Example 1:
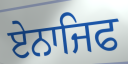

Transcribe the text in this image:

ਏਨਾਜਿਫ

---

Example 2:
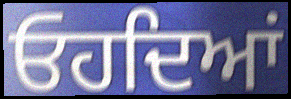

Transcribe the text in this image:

ਓਹਦਿਆਂ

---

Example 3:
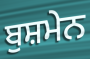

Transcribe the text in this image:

ਬੁਸ਼ਮੇਨ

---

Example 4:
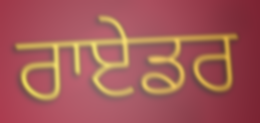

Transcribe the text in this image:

ਰਾਏਡਰ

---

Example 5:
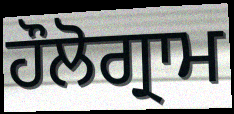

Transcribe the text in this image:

ਹੌਲੋਗ੍ਰਾਮ